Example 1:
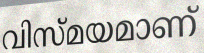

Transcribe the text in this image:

വിസ്മയമാണ്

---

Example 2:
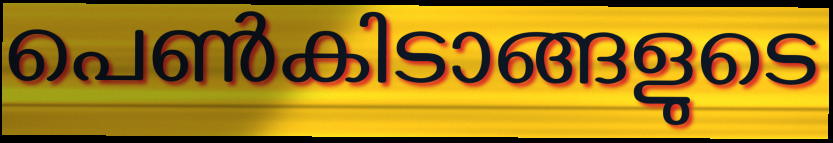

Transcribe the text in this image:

പെൺകിടാങ്ങളുടെ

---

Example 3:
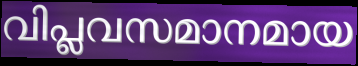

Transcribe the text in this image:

വിപ്ലവസമാനമായ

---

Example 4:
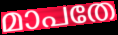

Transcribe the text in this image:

മാപതേ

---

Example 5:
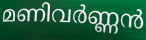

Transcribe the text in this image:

മണിവർണ്ണൻ